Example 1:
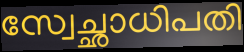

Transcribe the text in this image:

സ്വേച്ഛാധിപതി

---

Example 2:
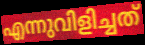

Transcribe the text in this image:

എന്നുവിളിച്ചത്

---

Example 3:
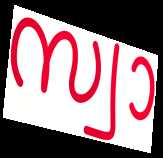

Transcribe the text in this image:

സ്വാ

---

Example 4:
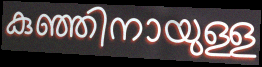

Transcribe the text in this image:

കുഞ്ഞിനായുള്ള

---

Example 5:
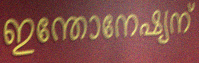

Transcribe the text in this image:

ഇന്തോനേഷ്യന്